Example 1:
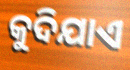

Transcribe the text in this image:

କୁଦିଯାଏ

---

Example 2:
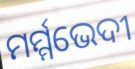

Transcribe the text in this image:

ମର୍ମ୍ମଭେଦୀ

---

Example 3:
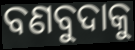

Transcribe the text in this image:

ବଣବୁଦାକୁ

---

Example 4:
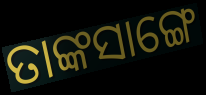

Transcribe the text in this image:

ତାଙ୍କସାଙ୍ଗେ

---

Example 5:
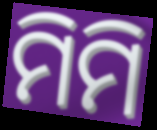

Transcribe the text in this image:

ମିମି